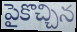
పైకొచ్చిన